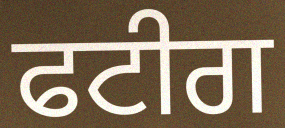
ਫਟੀਗ